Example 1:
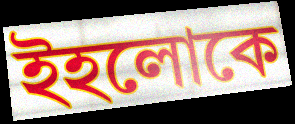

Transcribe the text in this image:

ইহলোকে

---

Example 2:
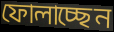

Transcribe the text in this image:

ফোলাচ্ছেন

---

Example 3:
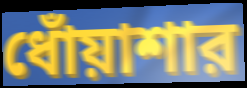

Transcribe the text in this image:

ধোঁয়াশার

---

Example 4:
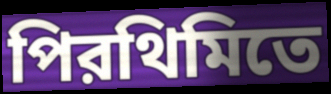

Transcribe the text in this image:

পিরথিমিতে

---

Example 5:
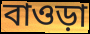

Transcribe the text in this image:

বাওড়া